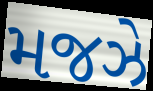
મજઝે